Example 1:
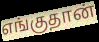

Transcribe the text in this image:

எங்குதான்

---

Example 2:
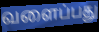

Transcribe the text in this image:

வளைப்பது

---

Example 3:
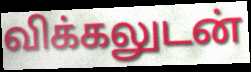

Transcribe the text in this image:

விக்கலுடன்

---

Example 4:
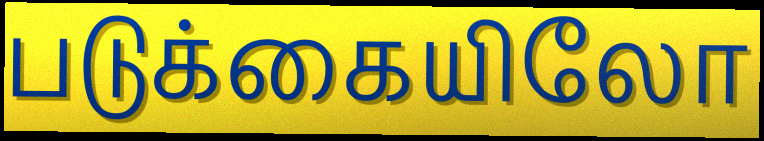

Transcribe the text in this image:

படுக்கையிலோ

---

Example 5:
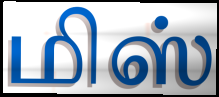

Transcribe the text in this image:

மிஸ்